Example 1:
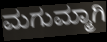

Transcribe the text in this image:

ಮಗುಮ್ಮಾಗಿ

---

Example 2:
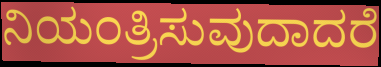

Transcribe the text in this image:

ನಿಯಂತ್ರಿಸುವುದಾದರೆ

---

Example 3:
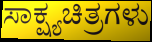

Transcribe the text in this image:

ಸಾಕ್ಷ್ಯಚಿತ್ರಗಳು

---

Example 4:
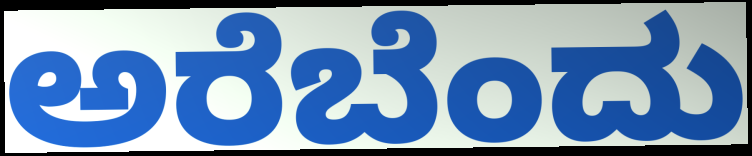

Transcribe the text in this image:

ಅರೆಬೆಂದು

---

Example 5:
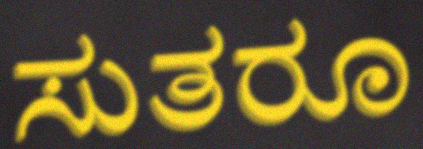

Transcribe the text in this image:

ಸುತರೂ